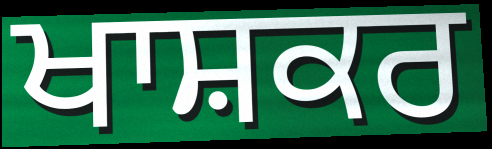
ਖਾਸ਼ਕਰ